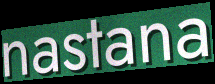
nastana